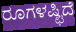
ರೂಗಳಷ್ಟಿದೆ